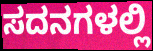
ಸದನಗಳಲ್ಲಿ